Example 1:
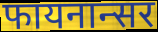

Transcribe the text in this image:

फायनान्सर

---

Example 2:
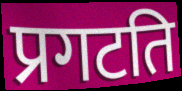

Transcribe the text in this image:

प्रगटति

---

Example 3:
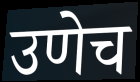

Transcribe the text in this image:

उणेच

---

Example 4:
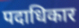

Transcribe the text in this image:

पदाधिकार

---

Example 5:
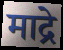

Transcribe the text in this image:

माद्रे